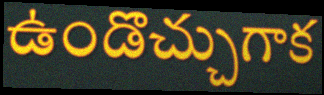
ఉండొచ్చుగాక